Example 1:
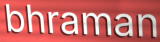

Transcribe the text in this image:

bhraman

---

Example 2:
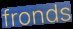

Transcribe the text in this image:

fronds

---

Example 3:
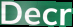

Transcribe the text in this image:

Decr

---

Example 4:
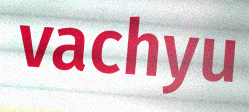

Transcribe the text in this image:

vachyu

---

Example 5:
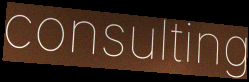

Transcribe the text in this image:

consulting